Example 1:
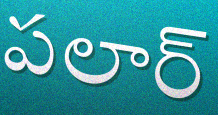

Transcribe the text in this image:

పలార్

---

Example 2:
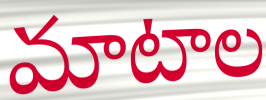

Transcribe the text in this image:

మాటాల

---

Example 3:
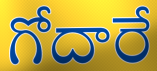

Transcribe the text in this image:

గోదారే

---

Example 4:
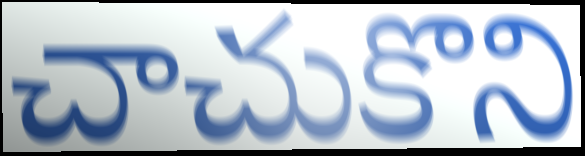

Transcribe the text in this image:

చాచుకొని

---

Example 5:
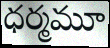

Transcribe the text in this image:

ధర్మమూ